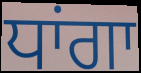
ਧਾਂਗਾ